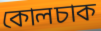
কোলচাক